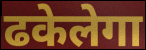
ढकेलेगा